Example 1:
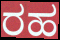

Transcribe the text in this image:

ರಹ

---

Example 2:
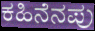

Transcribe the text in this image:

ಕಹಿನೆನಪು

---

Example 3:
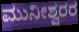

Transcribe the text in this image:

ಮುನೀಶ್ವರರ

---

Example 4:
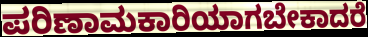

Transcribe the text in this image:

ಪರಿಣಾಮಕಾರಿಯಾಗಬೇಕಾದರೆ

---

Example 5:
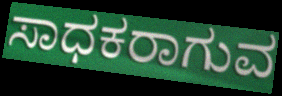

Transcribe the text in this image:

ಸಾಧಕರಾಗುವ